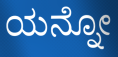
ಯನ್ನೋ